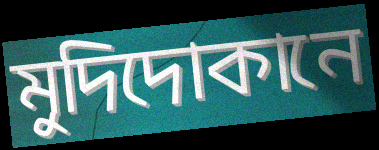
মুদিদোকানে